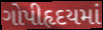
ગોપીહૃદયમાં